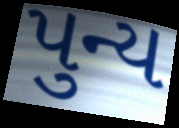
પુન્ય